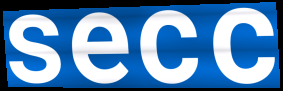
secc